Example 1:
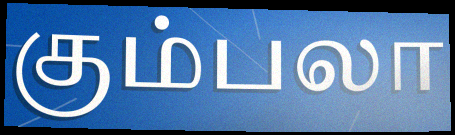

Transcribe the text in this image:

கும்பலா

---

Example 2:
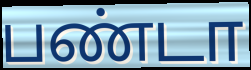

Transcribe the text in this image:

பண்டா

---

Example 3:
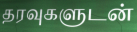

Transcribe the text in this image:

தரவுகளுடன்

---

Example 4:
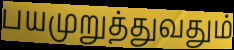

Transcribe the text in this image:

பயமுறுத்துவதும்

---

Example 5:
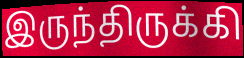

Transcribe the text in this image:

இருந்திருக்கி